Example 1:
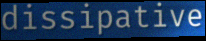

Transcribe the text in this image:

dissipative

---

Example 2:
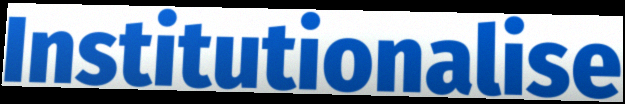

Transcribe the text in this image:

Institutionalise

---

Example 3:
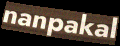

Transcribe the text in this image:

nanpakal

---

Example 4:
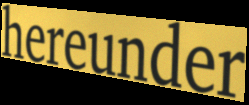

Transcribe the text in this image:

hereunder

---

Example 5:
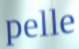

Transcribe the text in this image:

pelle